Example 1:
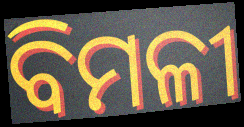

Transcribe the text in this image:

ବିମଳୀ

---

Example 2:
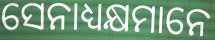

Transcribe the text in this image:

ସେନାଧ୍ୟକ୍ଷମାନେ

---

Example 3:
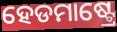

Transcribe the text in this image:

ହେଡମାଷ୍ଟ୍ରେ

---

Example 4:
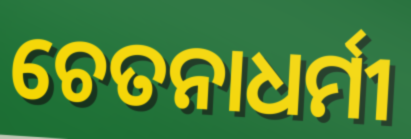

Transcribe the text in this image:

ଚେତନାଧର୍ମୀ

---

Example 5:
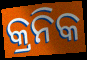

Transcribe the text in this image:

କ୍ରନିକ